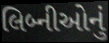
લિબ્નીઓનું